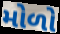
મોળો